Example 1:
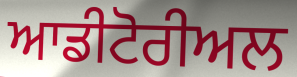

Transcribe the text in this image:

ਆਡੀਟੋਰੀਅਲ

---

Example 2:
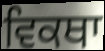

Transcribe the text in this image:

ਵਿਕਥਾ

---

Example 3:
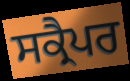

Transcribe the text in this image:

ਸਕ੍ਰੈਪਰ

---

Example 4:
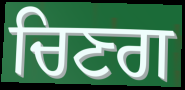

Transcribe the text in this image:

ਚਿਣਗ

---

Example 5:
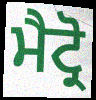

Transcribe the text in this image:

ਮੈਟ੍ਰੋ